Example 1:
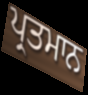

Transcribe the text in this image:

ਪ੍ਰਤਮਾਨ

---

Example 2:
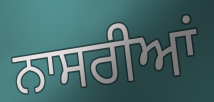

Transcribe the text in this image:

ਨਾਸਰੀਆਂ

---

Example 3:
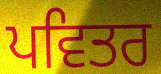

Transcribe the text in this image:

ਪਵਿਤਰ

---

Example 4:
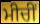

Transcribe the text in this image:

ਮੀਚੀਂ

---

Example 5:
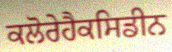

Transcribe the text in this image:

ਕਲੋਰੇਹੈਕਸਿਡੀਨ